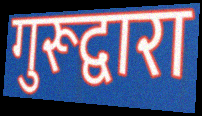
गुरूद्वारा